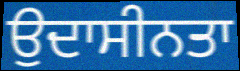
ਉਦਾਸੀਨਤਾ